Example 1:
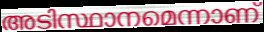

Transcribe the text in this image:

അടിസ്ഥാനമെന്നാണ്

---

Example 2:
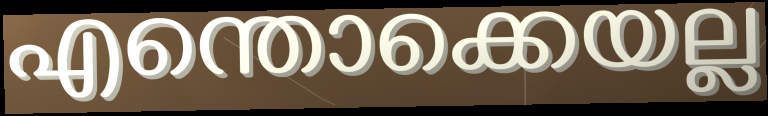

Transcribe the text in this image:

എന്തൊക്കെയല്ല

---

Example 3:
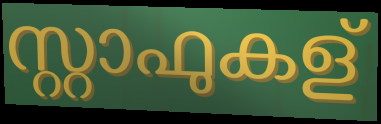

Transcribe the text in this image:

സ്റ്റാഫുകള്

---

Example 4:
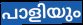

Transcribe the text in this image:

പാളിയും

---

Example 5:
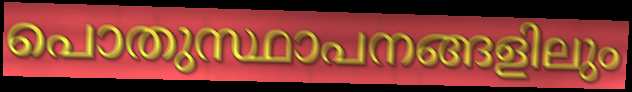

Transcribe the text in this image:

പൊതുസ്ഥാപനങ്ങളിലും